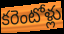
కరెంటోళ్లు